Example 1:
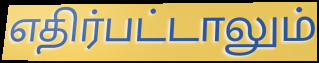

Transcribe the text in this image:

எதிர்பட்டாலும்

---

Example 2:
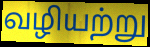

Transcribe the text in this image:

வழியற்று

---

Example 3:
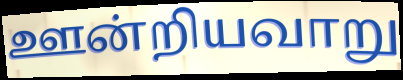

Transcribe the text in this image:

ஊன்றியவாறு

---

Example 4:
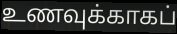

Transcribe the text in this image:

உணவுக்காகப்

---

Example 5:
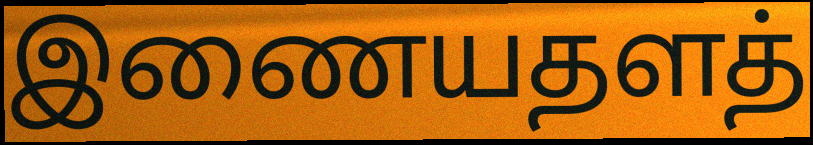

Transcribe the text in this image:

இணையதளத்